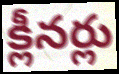
క్లీనర్లు